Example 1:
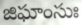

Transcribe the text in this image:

జిఘాంసుః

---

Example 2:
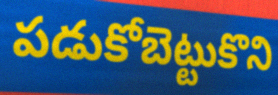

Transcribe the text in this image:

పడుకోబెట్టుకొని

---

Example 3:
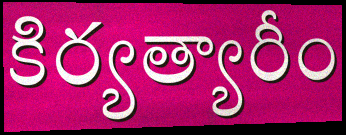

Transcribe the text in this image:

కిర్యత్యారీం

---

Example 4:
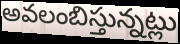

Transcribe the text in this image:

అవలంబిస్తున్నట్లు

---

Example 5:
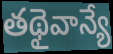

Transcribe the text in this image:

తథైవాన్యే